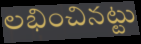
లభించినట్టు